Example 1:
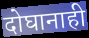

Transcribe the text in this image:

दोघानाही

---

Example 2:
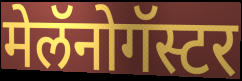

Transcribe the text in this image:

मेलॅनोगॅस्टर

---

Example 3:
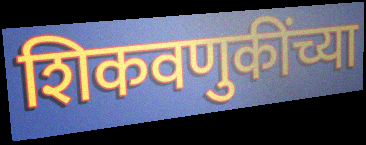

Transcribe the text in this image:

शिकवणुकींच्या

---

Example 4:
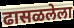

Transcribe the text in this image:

ढासळलेला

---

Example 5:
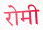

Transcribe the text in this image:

रोमी